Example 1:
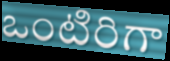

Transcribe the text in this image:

ఒంటిరిగా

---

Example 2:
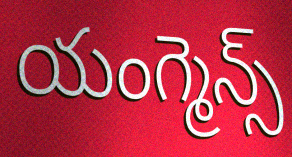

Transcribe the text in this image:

యంగ్మెన్స్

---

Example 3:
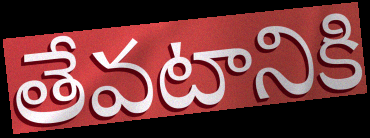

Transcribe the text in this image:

తేవటానికి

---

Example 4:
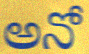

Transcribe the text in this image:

అనో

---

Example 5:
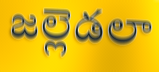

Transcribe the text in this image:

జల్లెడలా